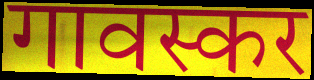
गावस्कर